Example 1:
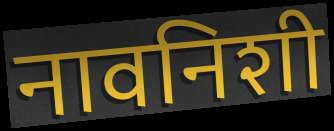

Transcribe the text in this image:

नावनिशी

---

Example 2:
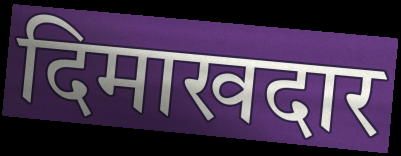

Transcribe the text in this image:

दिमाखदार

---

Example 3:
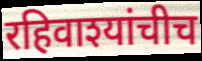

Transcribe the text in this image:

रहिवाश्यांचीच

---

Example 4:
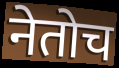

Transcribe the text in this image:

नेतोच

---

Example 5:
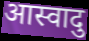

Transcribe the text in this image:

आस्वादु